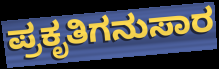
ಪ್ರಕೃತಿಗನುಸಾರ